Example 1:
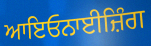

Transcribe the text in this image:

ਆਇਓਨਾਈਜ਼ਿੰਗ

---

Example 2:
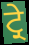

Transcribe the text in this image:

ਟ੍ਰੇ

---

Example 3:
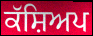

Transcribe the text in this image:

ਕੱਸ਼ਿਅਪ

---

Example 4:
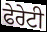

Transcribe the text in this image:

ਫੇਰੇਟੀ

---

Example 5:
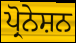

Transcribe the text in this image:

ਪ੍ਰੋਨੇਸ਼ਨ